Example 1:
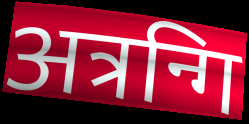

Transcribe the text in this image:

अत्रन्गि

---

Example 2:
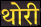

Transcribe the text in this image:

थोरी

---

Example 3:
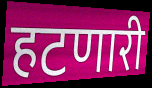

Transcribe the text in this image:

हटणारी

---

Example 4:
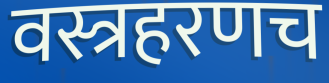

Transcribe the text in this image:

वस्त्रहरणच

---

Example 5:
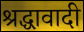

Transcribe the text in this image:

श्रद्धावादी